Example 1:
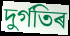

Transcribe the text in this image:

দুৰ্গতিৰ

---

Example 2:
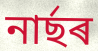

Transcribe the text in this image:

নাৰ্ছৰ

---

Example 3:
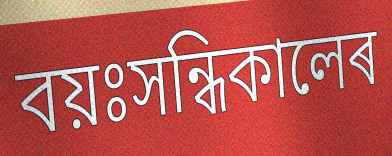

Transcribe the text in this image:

বয়ঃসন্ধিকালেৰ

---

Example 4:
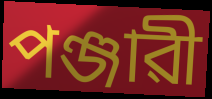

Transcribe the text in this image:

পঞ্জাৱী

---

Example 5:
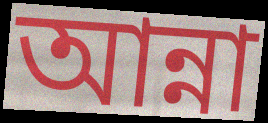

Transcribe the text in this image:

আন্না